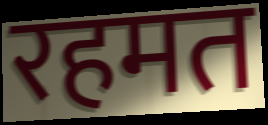
रहमत